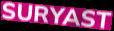
SURYAST